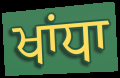
ਖਾਂਧਾ